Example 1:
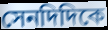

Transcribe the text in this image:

সেনদিদিকে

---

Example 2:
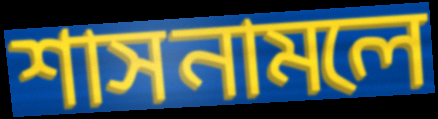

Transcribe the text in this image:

শাসনামলে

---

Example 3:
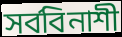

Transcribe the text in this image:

সর্ববিনাশী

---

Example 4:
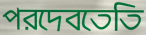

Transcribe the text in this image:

পরদেবতেতি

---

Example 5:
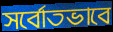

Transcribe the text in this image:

সর্বোতভাবে